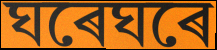
ঘৰেঘৰে